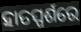
ହାତସ୍ପର୍ଶରେ